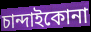
চান্দাইকোনা